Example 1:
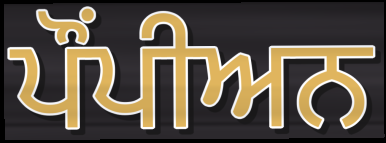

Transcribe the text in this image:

ਪੌਂਪੀਅਨ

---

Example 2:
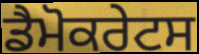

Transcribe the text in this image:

ਡੈਮੋਕਰੇਟਸ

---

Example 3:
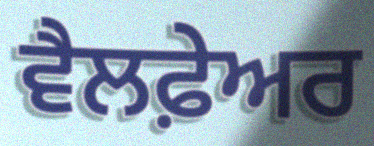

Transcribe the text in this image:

ਵੈਲਫ਼ੇਅਰ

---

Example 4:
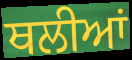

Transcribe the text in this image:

ਥਲੀਆਂ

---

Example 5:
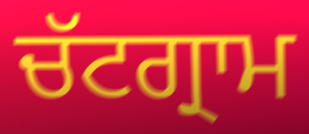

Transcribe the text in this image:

ਚੱਟਗ੍ਰਾਮ